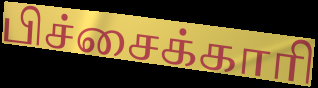
பிச்சைக்காரி